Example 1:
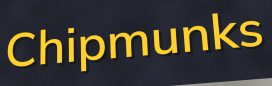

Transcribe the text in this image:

Chipmunks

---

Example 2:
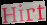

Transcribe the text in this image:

Hirt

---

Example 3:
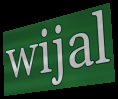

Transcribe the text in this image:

wijal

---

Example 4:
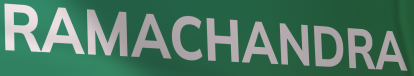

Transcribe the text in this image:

RAMACHANDRA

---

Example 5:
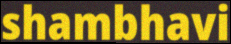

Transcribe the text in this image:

shambhavi